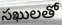
సఖులతో